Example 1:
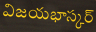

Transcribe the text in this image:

విజయభాస్కర్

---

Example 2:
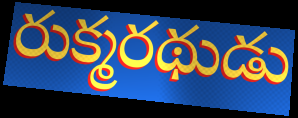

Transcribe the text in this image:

రుక్మరథుడు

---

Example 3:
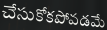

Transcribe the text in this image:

చేసుకోకపోవడమే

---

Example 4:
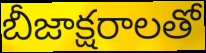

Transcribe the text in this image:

బీజాక్షరాలతో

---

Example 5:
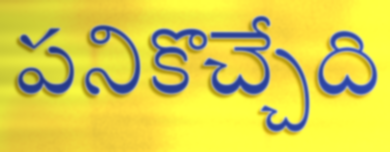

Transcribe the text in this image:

పనికొచ్చేది